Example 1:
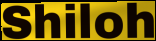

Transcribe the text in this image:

Shiloh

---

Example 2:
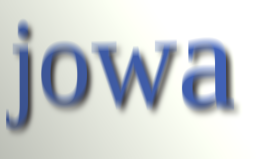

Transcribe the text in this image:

jowa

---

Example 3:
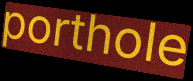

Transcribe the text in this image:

porthole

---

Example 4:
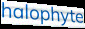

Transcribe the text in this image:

halophyte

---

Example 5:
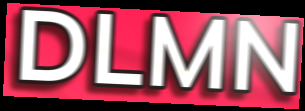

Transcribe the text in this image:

DLMN